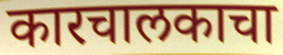
कारचालकाचा